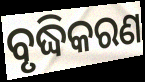
ବୃଦ୍ଧିକରଣ